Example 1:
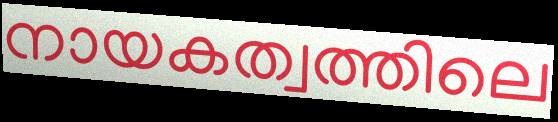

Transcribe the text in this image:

നായകത്വത്തിലെ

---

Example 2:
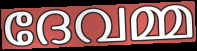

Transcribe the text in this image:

ദേവമ്മ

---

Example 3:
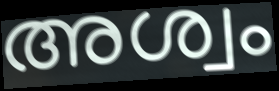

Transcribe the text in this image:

അശ്വം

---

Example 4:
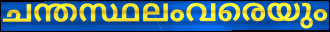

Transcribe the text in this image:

ചന്തസ്ഥലംവരെയും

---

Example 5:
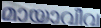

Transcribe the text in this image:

മായാവീവ